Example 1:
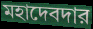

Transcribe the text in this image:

মহাদেবদার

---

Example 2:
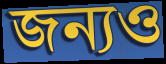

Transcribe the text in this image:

জন্যও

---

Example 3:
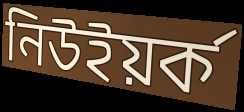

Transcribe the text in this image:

নিউইয়র্ক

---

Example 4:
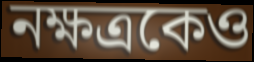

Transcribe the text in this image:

নক্ষত্রকেও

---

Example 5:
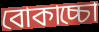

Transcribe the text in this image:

বোকাচ্চো